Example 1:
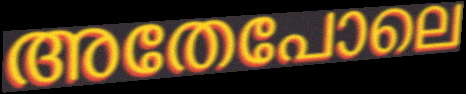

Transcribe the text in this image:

അതേപോലെ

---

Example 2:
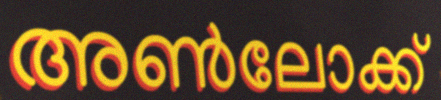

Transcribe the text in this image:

അൺലോക്ക്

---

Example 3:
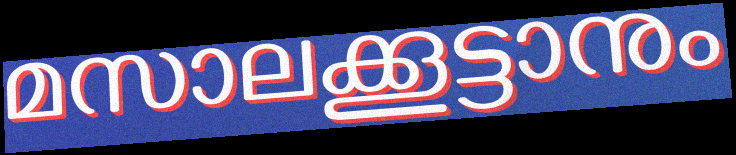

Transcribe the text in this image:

മസാലക്കൂട്ടാനും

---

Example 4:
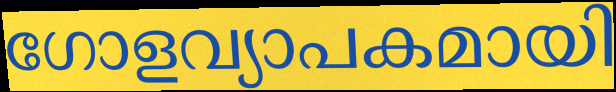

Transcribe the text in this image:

ഗോളവ്യാപകമായി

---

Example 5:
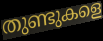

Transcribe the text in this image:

തുണ്ടുകളെ